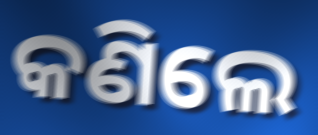
କଣିଲେ